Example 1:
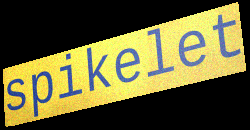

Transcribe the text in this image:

spikelet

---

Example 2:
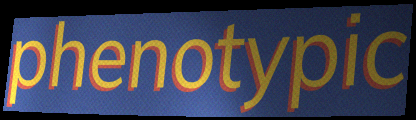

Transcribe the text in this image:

phenotypic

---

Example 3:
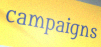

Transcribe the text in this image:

campaigns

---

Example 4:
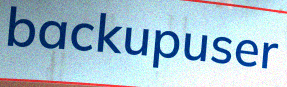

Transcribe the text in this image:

backupuser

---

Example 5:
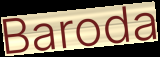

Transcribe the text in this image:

Baroda